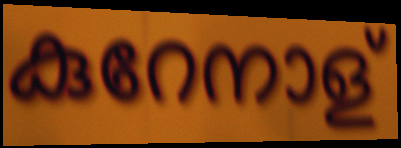
കുറേനാള്